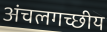
अंचलगच्छीय